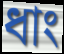
ধাং